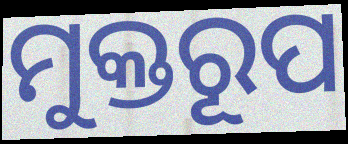
ମୁକ୍ତରୂପ